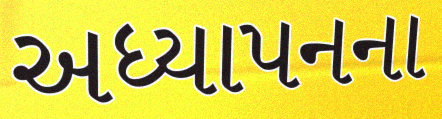
અધ્યાપનના